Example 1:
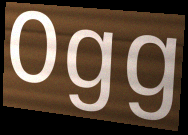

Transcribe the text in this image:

Ogg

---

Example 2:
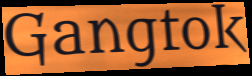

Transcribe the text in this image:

Gangtok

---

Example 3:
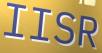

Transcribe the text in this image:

IISR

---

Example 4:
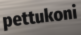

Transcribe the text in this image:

pettukoni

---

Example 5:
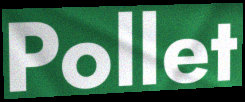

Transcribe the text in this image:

Pollet